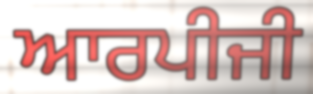
ਆਰਪੀਜੀ